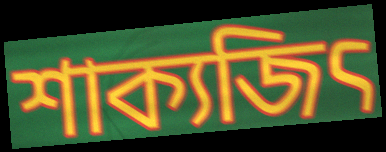
শাক্যজিৎ